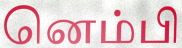
னெம்பி